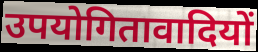
उपयोगितावादियों